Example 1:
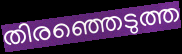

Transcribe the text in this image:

തിരഞ്ഞെടുത്ത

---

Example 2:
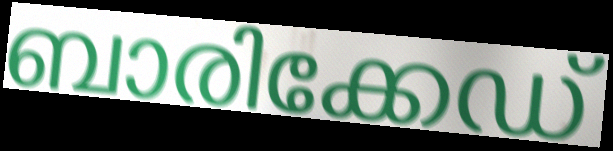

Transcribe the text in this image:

ബാരിക്കേഡ്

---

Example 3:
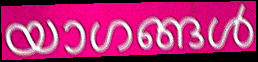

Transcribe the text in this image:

യാഗങ്ങൾ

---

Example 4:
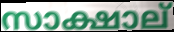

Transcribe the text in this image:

സാക്ഷാല്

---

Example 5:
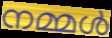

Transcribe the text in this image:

നമ്മൾ